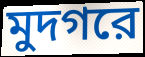
মুদগরে